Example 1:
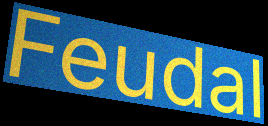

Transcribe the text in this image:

Feudal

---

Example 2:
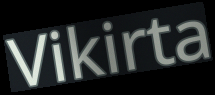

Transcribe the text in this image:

Vikirta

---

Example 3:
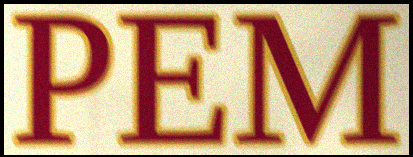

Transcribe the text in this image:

PEM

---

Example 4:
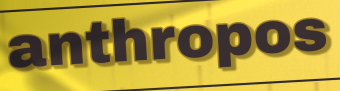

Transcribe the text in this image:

anthropos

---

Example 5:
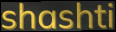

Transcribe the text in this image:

shashti